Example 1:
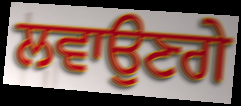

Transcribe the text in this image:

ਲਵਾਉਣਗੇ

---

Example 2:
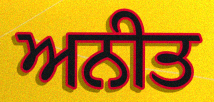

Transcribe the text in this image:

ਅਨੀਤ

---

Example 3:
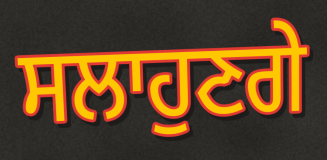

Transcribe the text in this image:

ਸਲਾਹੁਣਗੇ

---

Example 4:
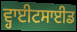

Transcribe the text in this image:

ਵ੍ਹਾਈਟਸਾਈਡ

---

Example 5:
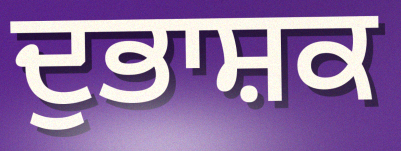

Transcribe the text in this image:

ਦੁਭਾਸ਼ਕ